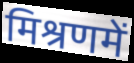
मिश्रणमें